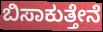
ಬಿಸಾಕುತ್ತೇನೆ